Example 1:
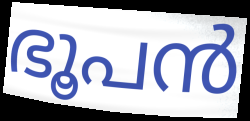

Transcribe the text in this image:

ഭൂപൻ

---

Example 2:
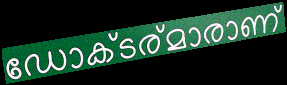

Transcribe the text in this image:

ഡോക്ടര്മാരാണ്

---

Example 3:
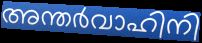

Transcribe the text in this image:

അന്തർവാഹിനി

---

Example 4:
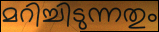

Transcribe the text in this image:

മറിച്ചിടുന്നതും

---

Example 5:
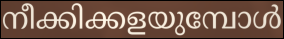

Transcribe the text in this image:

നീക്കിക്കളയുമ്പോൾ